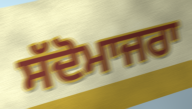
ਸੱਦੋਮਾਜਰਾ